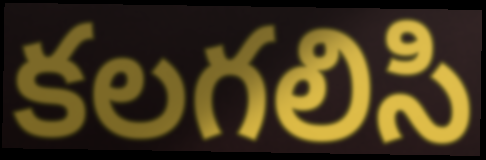
కలగలిసి